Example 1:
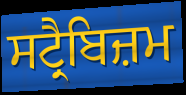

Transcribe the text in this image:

ਸਟ੍ਰੈਬਿਜ਼ਮ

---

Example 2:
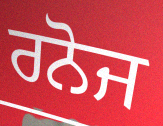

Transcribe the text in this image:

ਰਨੋਜ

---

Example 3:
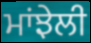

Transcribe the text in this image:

ਮਾਂਝੇਲੀ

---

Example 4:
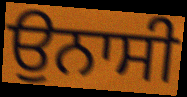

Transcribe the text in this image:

ਉਨਾਸੀ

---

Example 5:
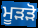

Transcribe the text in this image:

ਮੂੜੜੋ